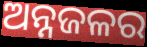
ଅନ୍ନଜଳର